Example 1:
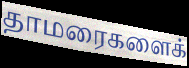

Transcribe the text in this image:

தாமரைகளைக்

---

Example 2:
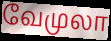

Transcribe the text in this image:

வேமுலா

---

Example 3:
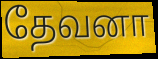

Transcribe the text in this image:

தேவனா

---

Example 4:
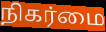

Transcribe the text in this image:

நிகர்மை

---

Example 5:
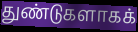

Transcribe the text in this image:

துண்டுகளாகக்